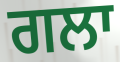
ਗਲਾ